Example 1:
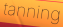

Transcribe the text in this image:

tanning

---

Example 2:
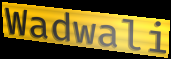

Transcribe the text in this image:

Wadwali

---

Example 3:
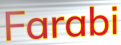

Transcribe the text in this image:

Farabi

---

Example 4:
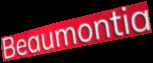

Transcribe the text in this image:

Beaumontia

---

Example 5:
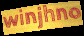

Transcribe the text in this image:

winjhno